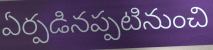
ఏర్పడినప్పటినుంచి